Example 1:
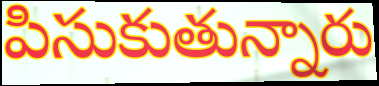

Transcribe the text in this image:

పిసుకుతున్నారు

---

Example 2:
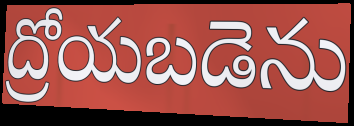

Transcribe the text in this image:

ద్రోయబడెను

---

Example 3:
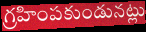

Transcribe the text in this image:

గ్రహింపకుండునట్లు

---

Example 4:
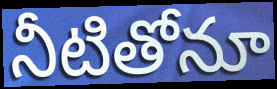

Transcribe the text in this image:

నీటితోనూ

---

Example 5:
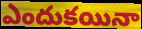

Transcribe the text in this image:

ఎందుకయినా